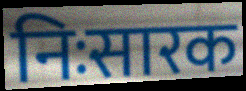
निःसारक